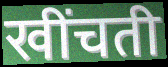
खींचती